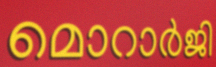
മൊറാർജി